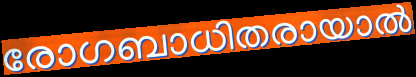
രോഗബാധിതരായാൽ